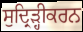
ਸੁਦ੍ਰਿੜ੍ਹੀਕਰਨ